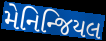
મેનિન્જિયલ